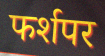
फर्शपर